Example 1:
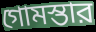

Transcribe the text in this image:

গোমস্তার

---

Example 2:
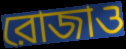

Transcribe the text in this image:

রোজাও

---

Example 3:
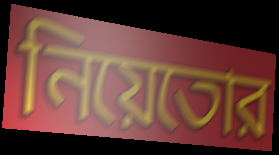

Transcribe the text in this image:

নিয়েতোর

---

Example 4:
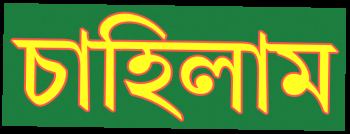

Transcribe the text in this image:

চাহিলাম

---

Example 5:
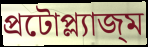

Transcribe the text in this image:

প্রটোপ্ল্যাজ্ম